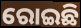
ରୋଇଛି